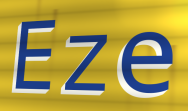
Eze